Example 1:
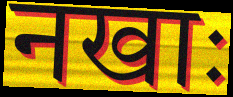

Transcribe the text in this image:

नखाः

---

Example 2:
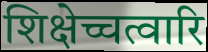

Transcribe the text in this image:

शिक्षेच्चत्वारि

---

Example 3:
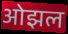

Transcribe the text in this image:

ओझल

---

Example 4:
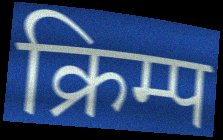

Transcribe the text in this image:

क्रिम्प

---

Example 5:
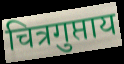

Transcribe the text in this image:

चित्रगुप्ताय